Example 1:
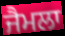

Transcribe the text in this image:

ਜੈਮਲਾ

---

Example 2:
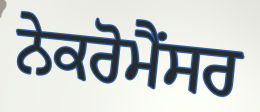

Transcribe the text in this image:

ਨੇਕਰੋਮੈਂਸਰ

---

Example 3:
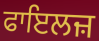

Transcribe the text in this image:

ਫਾਇਲਜ਼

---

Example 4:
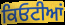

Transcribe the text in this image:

ਕਿਓਟੀਆਂ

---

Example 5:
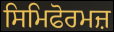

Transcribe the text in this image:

ਸਿਮਿਫੋਰਮਜ਼